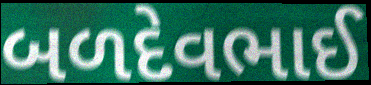
બળદેવભાઈ